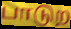
பாடுற